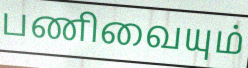
பணிவையும்